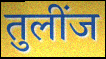
तुलींज